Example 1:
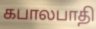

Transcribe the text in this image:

கபாலபாதி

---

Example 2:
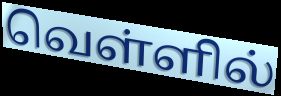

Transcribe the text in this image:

வெள்ளில்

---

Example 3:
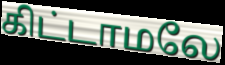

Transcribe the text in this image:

கிட்டாமலே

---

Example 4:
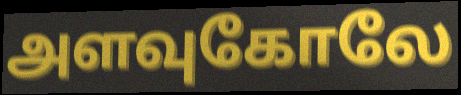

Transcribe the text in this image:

அளவுகோலே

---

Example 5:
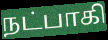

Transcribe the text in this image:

நட்பாகி